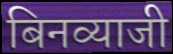
बिनव्याजी